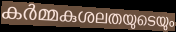
കർമ്മകുശലതയുടെയും